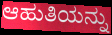
ಆಹುತಿಯನ್ನು